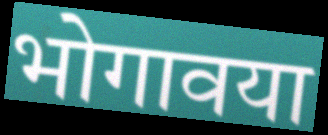
भोगावया